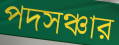
পদসঞ্চার